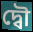
দ্বৌ